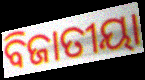
ବିଜାତୀୟା